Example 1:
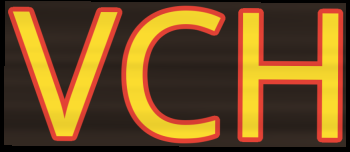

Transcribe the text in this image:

VCH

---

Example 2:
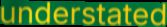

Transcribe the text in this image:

understated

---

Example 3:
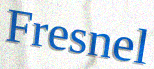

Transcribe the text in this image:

Fresnel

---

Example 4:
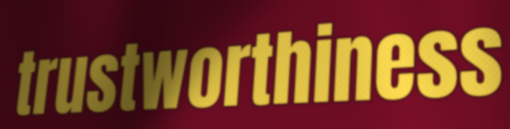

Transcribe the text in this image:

trustworthiness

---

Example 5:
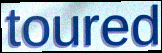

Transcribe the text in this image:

toured